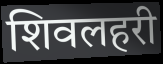
शिवलहरी